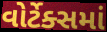
વોર્ટેક્સમાં